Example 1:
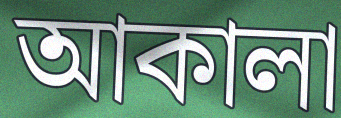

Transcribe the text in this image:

আকালা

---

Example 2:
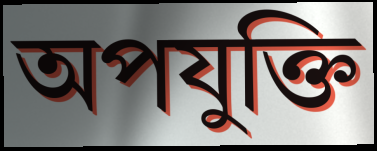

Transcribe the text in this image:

অপযুক্তি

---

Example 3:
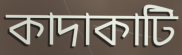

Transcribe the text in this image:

কাদাকাটি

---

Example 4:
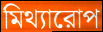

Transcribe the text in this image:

মিথ্যারোপ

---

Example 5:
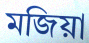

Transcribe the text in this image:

মজিয়া